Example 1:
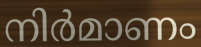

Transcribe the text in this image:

നിർമാണം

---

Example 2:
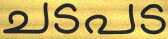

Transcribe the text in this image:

ചടപട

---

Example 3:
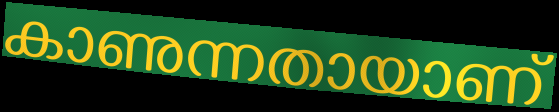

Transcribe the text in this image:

കാണുന്നതായാണ്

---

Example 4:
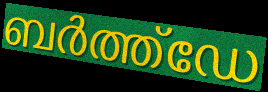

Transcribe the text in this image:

ബർത്ത്ഡേ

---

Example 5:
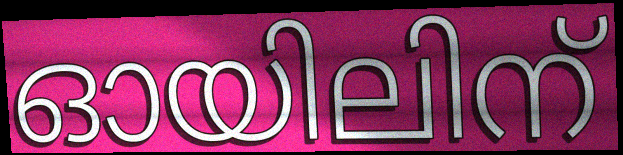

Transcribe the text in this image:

ഓയിലിന്